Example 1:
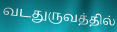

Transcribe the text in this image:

வடதுருவத்தில்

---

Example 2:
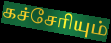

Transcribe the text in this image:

கச்சேரியும்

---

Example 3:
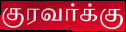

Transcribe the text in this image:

குரவர்க்கு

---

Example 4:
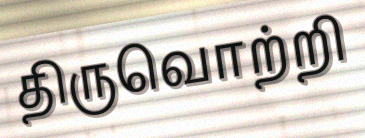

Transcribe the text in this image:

திருவொற்றி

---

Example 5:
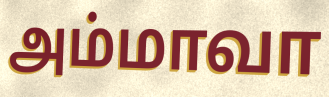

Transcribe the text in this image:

அம்மாவா